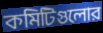
কমিটিগুলোর